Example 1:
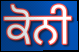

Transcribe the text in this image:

ਕੋਨੀ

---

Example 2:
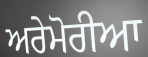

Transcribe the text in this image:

ਅਰੇਮੋਰੀਆ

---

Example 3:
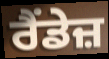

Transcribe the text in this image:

ਰੈਂਡੇਜ਼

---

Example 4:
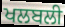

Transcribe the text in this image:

ਖਲਬਲੀ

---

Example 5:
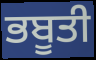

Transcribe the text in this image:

ਭਬੂਤੀ